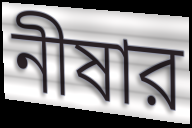
নীষার